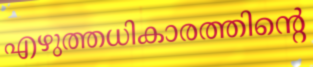
എഴുത്തധികാരത്തിന്റെ